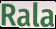
Rala